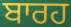
ਬਾਰਹ